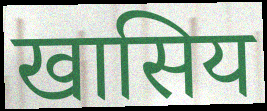
खासिय